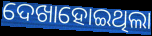
ଦେଖାହୋଇଥିଲା